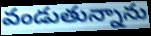
వండుతున్నాను